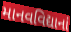
માનવવિદ્યાનાં